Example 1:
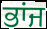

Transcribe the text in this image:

ਭਾਂਜ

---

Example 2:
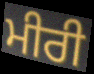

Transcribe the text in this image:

ਮੀਰੀ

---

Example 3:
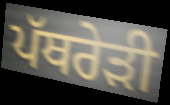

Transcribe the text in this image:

ਪੱਥਰੇੜੀ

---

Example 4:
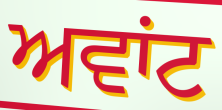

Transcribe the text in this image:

ਅਵਾਂਟ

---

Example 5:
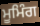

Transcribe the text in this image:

ਮੂਮਿੰਗ